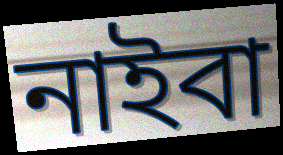
নাইবা